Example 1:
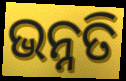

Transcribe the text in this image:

ଭନ୍ନତି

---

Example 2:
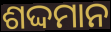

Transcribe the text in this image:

ଶଦ୍ଦମାନ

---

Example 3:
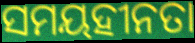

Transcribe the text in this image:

ସମୟହୀନତା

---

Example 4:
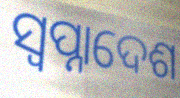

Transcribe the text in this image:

ସ୍ବପ୍ନାଦେଶ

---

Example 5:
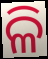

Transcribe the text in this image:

ଳି